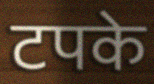
टपके